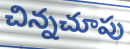
చిన్నచూపు